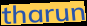
tharun